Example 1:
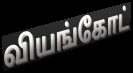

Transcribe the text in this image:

வியங்கோட்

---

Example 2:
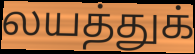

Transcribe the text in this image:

லயத்துக்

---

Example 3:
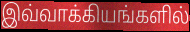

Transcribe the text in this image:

இவ்வாக்கியங்களில்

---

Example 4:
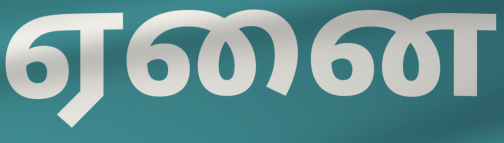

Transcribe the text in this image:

ஏனை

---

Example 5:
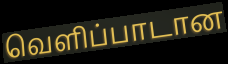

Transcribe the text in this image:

வெளிப்பாடான